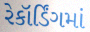
રેકૉર્ડિંગમાં